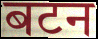
बटन